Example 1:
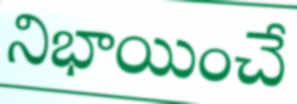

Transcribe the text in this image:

నిభాయించే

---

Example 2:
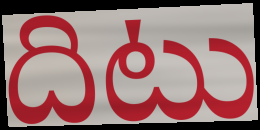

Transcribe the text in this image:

దిటు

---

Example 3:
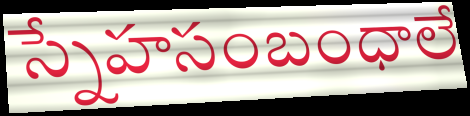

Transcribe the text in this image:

స్నేహసంబంధాలే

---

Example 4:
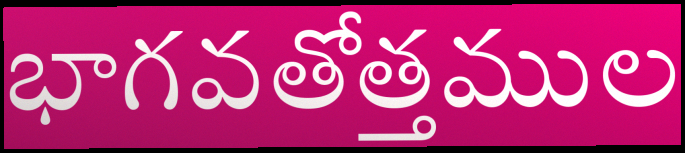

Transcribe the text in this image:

భాగవతోత్తముల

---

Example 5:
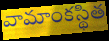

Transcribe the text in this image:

వామాంకస్థిత